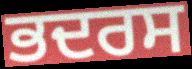
ਭਦਰਸ